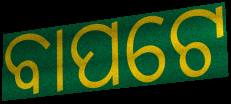
ବାପଟେ